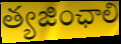
త్యజింఛాలి